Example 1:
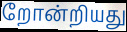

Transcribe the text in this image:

றோன்றியது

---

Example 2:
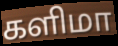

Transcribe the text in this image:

களிமா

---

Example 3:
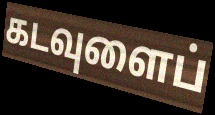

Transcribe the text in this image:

கடவுளைப்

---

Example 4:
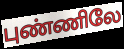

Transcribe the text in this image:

புண்ணிலே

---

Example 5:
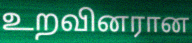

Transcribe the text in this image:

உறவினரான